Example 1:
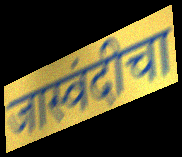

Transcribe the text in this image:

जास्वंदीचा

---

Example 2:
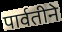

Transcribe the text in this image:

पार्वतीने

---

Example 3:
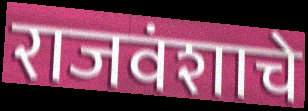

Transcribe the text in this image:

राजवंशाचे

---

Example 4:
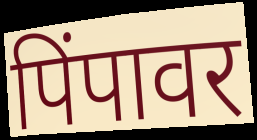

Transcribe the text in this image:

पिंपावर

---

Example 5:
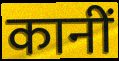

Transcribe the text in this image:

कानीं